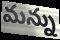
మన్ను